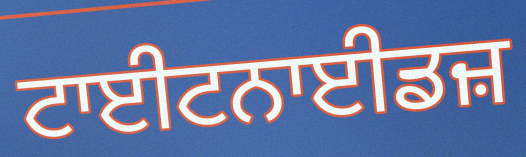
ਟਾਈਟਨਾਈਡਜ਼